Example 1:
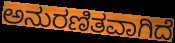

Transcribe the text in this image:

ಅನುರಣಿತವಾಗಿದೆ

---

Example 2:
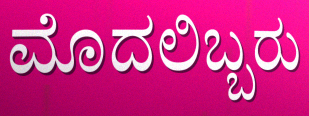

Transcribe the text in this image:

ಮೊದಲಿಬ್ಬರು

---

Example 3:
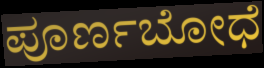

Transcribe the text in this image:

ಪೂರ್ಣಬೋಧೆ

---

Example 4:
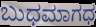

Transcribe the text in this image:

ಬುಧಮಾಗಧ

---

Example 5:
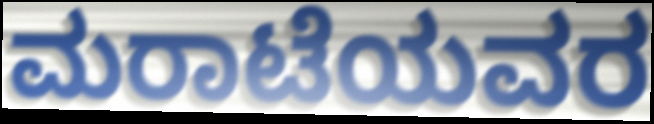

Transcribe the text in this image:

ಮರಾಟೆಯವರ